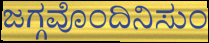
ಜಗ್ಗವೊಂದಿನಿಸುಂ